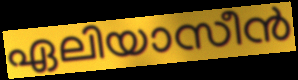
ഏലിയാസീൻ